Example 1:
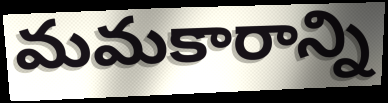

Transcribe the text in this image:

మమకారాన్ని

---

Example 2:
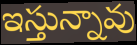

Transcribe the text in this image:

ఇస్తున్నావు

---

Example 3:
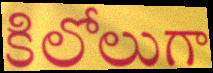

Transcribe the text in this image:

కిలోలుగా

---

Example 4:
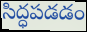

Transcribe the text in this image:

సిద్ధపడడం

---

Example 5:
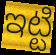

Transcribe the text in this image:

ఇట్టి